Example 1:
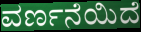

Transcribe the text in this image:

ವರ್ಣನೆಯಿದೆ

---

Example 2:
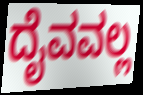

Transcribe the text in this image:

ದೈವವಲ್ಲ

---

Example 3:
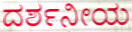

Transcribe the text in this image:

ದರ್ಶನೀಯ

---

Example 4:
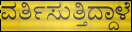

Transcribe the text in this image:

ವರ್ತಿಸುತ್ತಿದ್ದಾಳೆ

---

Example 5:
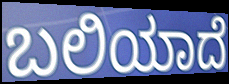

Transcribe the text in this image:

ಬಲಿಯಾದೆ